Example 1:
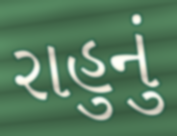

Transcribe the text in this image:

રાહુનું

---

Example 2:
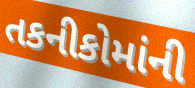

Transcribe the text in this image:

તકનીકોમાંની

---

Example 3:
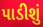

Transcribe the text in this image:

પાડીશું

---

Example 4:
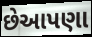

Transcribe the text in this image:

છેઆપણા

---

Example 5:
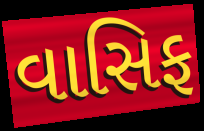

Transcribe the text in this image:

વાસિફ